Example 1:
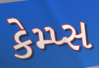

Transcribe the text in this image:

કેમ્પ્સ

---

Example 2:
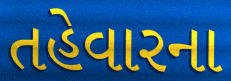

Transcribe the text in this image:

તહેવારના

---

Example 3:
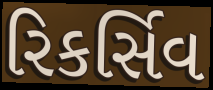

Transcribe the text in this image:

રિકર્સિવ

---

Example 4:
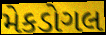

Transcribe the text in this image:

મેકડોગલ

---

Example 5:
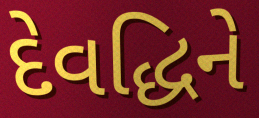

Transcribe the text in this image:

દેવદ્ધિને